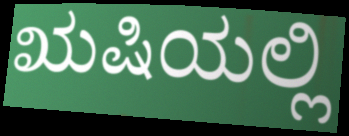
ಋಷಿಯಲ್ಲಿ